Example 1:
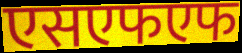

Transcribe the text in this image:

एसएफएफ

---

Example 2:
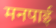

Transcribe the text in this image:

मनपाई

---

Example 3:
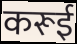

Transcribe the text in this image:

करूई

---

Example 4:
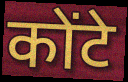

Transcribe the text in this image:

कोंटे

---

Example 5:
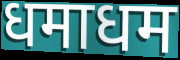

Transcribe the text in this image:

धमाधम